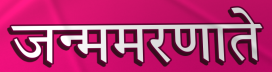
जन्ममरणाते